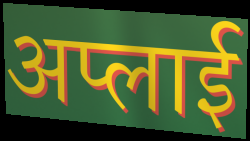
अप्‍लाई